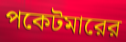
পকেটমারের